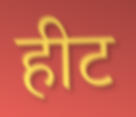
हीट